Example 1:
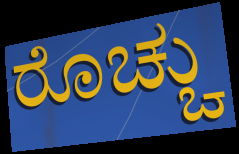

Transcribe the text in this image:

ರೊಚ್ಚು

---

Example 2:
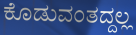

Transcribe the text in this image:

ಕೊಡುವಂತದ್ದಲ್ಲ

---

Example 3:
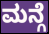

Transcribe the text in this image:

ಮನ್ಗೆ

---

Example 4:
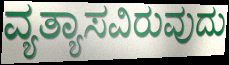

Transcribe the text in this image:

ವ್ಯತ್ಯಾಸವಿರುವುದು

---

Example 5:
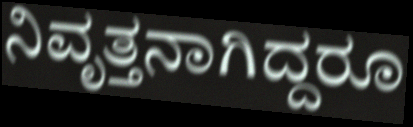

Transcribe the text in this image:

ನಿವೃತ್ತನಾಗಿದ್ದರೂ